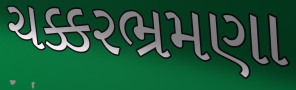
ચક્કરભ્રમણા